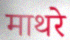
माथरे